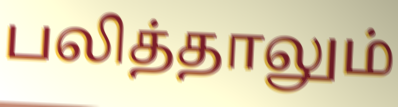
பலித்தாலும்